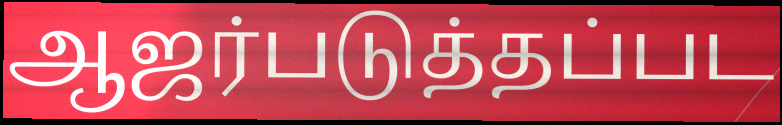
ஆஜர்படுத்தப்பட